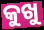
କୁଖୁ